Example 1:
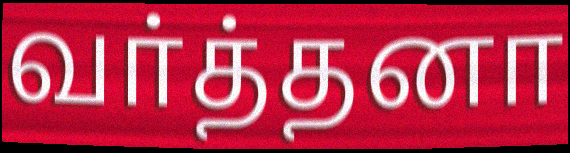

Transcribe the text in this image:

வர்த்தனா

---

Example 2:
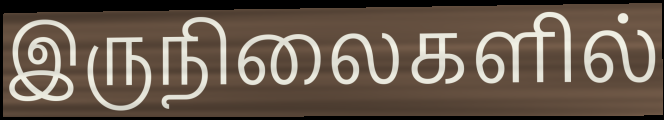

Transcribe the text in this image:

இருநிலைகளில்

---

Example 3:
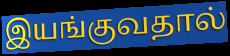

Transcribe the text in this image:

இயங்குவதால்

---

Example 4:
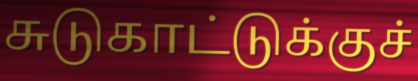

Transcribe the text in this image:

சுடுகாட்டுக்குச்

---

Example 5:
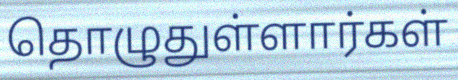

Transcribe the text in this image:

தொழுதுள்ளார்கள்